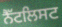
ਨੈੱਟਲਿਸਟ